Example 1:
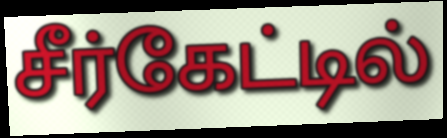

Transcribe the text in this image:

சீர்கேட்டில்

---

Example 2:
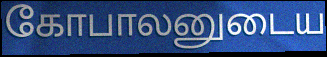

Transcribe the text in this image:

கோபாலனுடைய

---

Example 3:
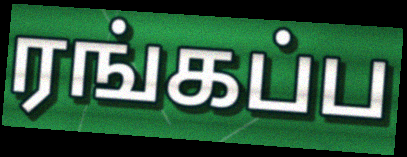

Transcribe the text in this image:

ரங்கப்ப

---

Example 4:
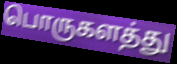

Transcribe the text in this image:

பொருகளத்து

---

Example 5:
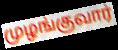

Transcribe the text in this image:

முழங்குவார்